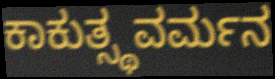
ಕಾಕುತ್ಸ್ಥವರ್ಮನ